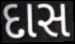
દાસ